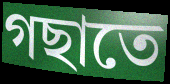
গছাতে